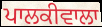
ਪਾਲਕੀਵਾਲਾ